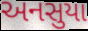
અનસુયા